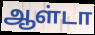
ஆள்டா